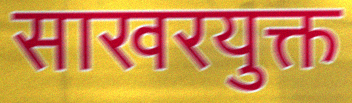
साखरयुक्त